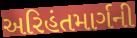
અરિહંતમાર્ગની